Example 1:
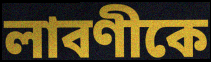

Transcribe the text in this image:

লাবণীকে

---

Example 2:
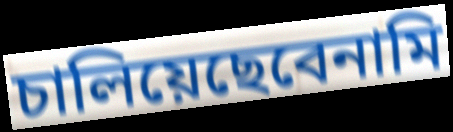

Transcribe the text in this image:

চালিয়েছেবেনামি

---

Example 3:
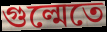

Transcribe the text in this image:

গুল্মেতে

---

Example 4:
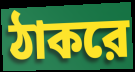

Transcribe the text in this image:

ঠাকরে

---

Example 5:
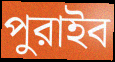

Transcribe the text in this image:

পুরাইব